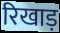
रिखाड़